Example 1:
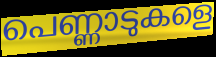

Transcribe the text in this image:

പെണ്ണാടുകളെ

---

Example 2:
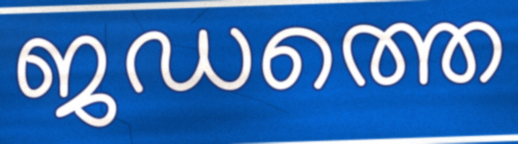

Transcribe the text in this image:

ജഡത്തെ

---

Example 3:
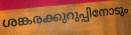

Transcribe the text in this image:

ശങ്കരക്കുറുപ്പിനോടും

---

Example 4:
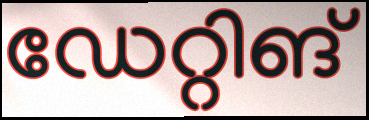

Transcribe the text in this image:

ഡേറ്റിങ്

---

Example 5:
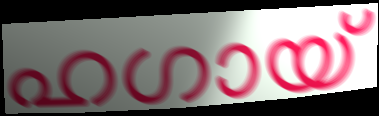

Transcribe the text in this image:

ഹഗായ്